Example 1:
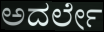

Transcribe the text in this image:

ಅದರ್ಲೇ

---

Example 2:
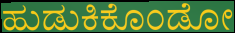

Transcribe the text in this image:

ಹುಡುಕಿಕೊಂಡೋ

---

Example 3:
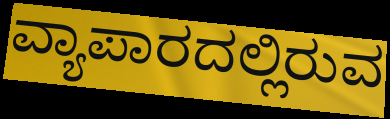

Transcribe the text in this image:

ವ್ಯಾಪಾರದಲ್ಲಿರುವ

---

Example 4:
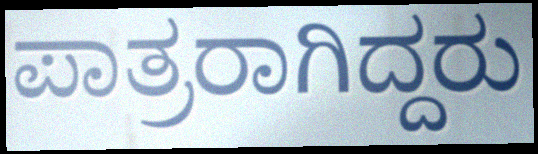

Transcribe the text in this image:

ಪಾತ್ರರಾಗಿದ್ದರು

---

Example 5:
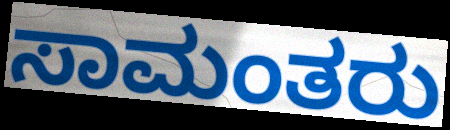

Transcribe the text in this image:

ಸಾಮಂತರು